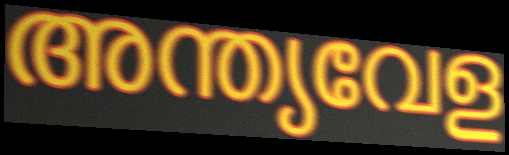
അന്ത്യവേള